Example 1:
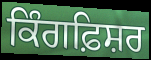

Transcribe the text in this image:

ਕਿੰਗਫ਼ਿਸ਼ਰ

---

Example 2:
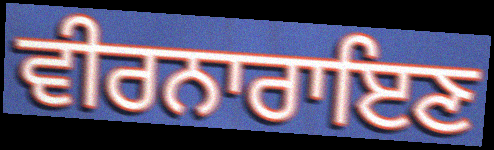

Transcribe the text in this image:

ਵੀਰਨਾਰਾਇਣ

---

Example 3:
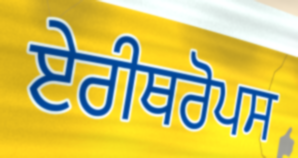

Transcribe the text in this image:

ਏਰੀਥਰੋਪਸ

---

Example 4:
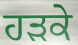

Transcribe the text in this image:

ਹੜਕੇ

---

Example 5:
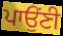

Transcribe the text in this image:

ਪਾਉਂਣੀ